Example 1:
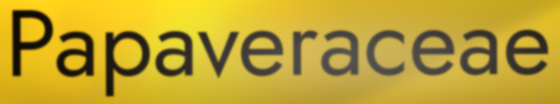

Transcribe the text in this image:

Papaveraceae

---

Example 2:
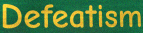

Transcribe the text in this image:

Defeatism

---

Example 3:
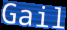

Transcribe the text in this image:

Gail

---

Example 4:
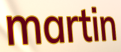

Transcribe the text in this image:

martin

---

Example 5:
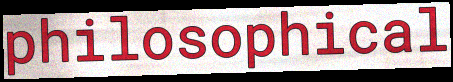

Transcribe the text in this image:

philosophical